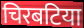
चिरबटिया